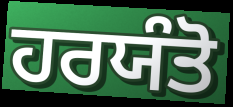
ਹਰਯੰਤੋ